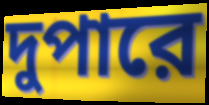
দুপারে